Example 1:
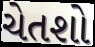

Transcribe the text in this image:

ચેતશો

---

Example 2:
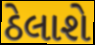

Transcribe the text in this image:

ઠેલાશે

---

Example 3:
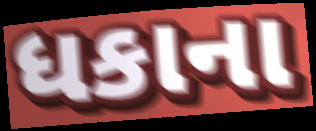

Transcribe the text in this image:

ધકાના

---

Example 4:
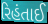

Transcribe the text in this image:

રિહંતાઈ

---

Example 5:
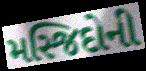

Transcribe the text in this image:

મસ્જિદોની